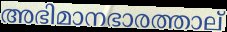
അഭിമാനഭാരത്താല്